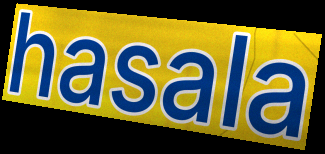
hasala